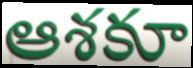
ఆశకూ